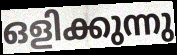
ഒളിക്കുന്നു